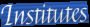
Institutes